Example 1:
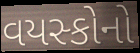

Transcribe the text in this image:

વયસ્કોનો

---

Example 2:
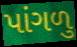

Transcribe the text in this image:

પાંગળુ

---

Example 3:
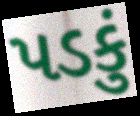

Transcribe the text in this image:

પડકું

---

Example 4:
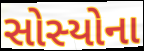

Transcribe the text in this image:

સોસ્યોના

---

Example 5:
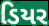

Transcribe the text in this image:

ડિયર